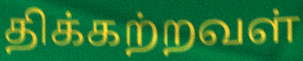
திக்கற்றவள்